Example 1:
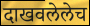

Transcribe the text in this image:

दाखवलेलेच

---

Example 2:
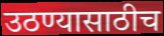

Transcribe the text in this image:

उठण्यासाठीच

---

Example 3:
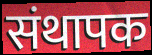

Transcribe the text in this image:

संथापक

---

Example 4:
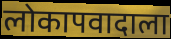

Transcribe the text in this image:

लोकापवादाला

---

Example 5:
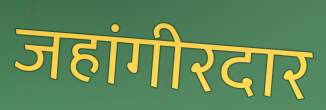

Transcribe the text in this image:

जहांगीरदार